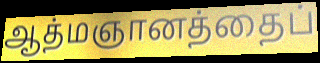
ஆத்மஞானத்தைப்